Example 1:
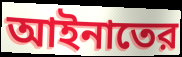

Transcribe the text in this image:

আইনাতের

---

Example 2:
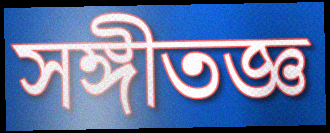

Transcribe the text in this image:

সঙ্গীতজ্ঞ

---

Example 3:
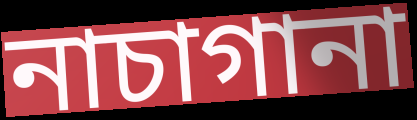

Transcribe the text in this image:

নাচাগানা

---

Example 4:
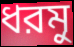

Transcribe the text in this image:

ধরমু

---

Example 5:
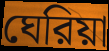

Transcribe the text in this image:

ঘেরিয়া